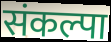
संकल्पा